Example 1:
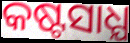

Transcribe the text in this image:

କଷ୍ଟସାଧ୍ଯ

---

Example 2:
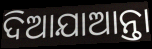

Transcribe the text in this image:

ଦିଆଯାଆନ୍ତା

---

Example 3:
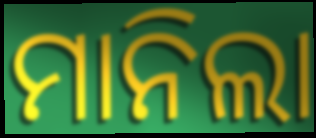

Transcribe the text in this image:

ମାନିଲା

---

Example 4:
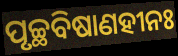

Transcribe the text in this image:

ପୃଚ୍ଛବିଷାଣହୀନଃ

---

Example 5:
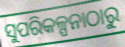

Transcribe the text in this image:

ସୁପରିକଳ୍ପନାଠାରୁ